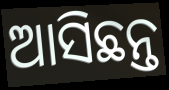
ଆସିଛନ୍ତ